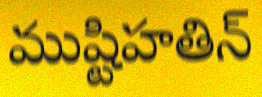
ముష్టిహతిన్